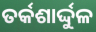
ତର୍କଶାର୍ଦ୍ଦୁଳ